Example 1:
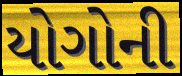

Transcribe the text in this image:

યોગોની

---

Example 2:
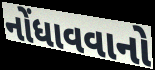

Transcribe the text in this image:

નોંધાવવાનો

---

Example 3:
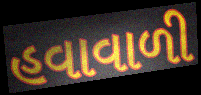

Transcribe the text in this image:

હવાવાળી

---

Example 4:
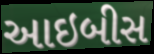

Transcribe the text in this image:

આઇબીસ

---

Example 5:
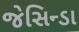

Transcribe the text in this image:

જેસિન્ડા